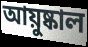
আয়ুষ্কাল